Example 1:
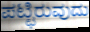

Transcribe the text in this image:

ಪಟ್ಟಿರುವುದು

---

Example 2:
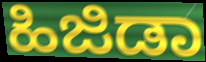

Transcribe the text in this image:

ಹಿಜಿಡಾ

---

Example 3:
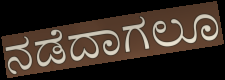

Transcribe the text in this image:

ನಡೆದಾಗಲೂ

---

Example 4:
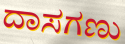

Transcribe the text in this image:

ದಾಸಗಣು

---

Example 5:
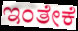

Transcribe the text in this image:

ಇಂತೇಕೆ